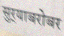
सुर्याबरोबर